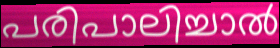
പരിപാലിച്ചാൽ